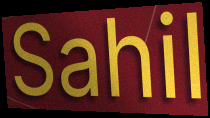
Sahil